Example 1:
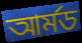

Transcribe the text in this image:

আৰ্মড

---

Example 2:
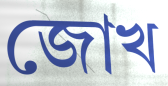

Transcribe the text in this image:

জোখ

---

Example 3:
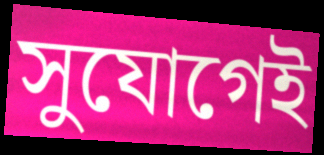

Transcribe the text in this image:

সুযোগেই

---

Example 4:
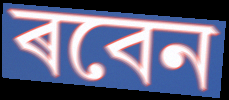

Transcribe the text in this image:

ৰবেন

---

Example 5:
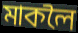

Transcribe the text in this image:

মাকলৈ